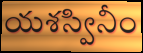
యశస్వినీం